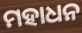
ମହାଧନ